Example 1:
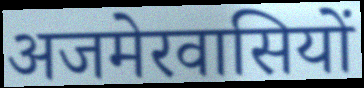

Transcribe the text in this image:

अजमेरवासियों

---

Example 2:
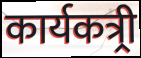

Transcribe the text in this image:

कार्यकत्र्री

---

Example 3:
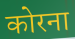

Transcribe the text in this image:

कोरना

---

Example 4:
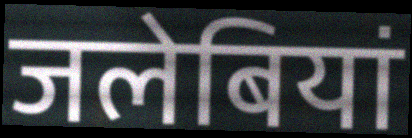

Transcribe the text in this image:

जलेबियां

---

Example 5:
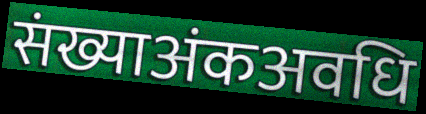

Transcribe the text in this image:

संख्याअंकअवधि